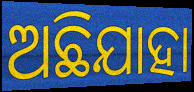
ଅଛିଯାହା